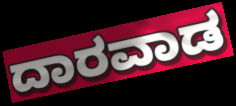
ದಾರವಾಡ